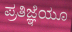
ಪ್ರತಿಜ್ಞೆಯೂ